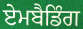
ਏਮਬੈਡਿੰਗ